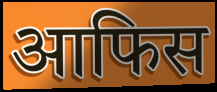
आफिस